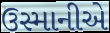
ઉસ્માનીએ